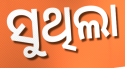
ସୁଥିଲା